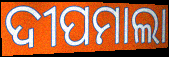
ଦୀପମାଲା